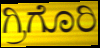
ಗ್ರಿಗೊರಿ